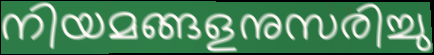
നിയമങ്ങളനുസരിച്ചു